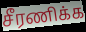
சீரணிக்க